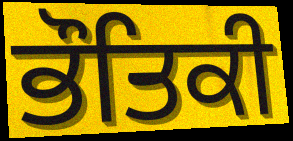
ਭੌਤਿਕੀ